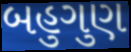
બહુગુણ